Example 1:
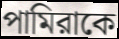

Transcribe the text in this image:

পামিরাকে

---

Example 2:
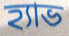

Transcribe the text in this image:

হ্যাভ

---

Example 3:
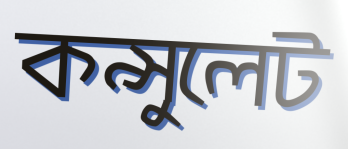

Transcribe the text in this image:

কন্সুলেট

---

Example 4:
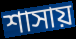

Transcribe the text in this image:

শাসায়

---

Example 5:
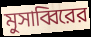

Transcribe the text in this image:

মুসাব্বিরের